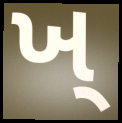
ખ્